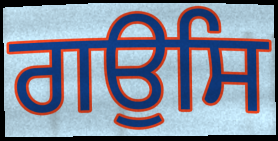
ਗਉਸਿ